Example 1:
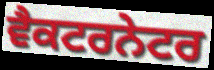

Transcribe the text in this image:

ਵੈਕਟਰਨੇਟਰ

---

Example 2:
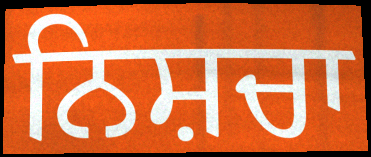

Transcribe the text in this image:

ਨਿਸ਼ਚਾ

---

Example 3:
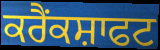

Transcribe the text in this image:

ਕਰੈਂਕਸ਼ਾਫਟ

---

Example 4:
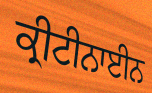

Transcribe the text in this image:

ਕ੍ਰੀਟੀਨਾਈਨ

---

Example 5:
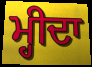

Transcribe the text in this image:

ਮ੍ਹੀਦਾ